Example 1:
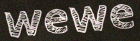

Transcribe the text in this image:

wewe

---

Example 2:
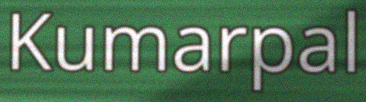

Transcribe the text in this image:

Kumarpal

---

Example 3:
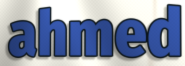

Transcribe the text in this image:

ahmed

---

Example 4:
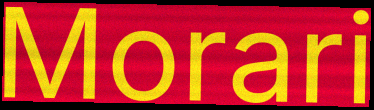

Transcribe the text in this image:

Morari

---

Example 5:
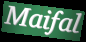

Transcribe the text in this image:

Maifal